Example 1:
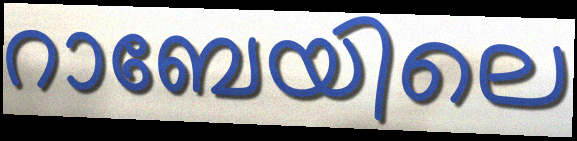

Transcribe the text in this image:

റാബേയിലെ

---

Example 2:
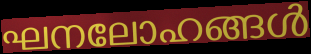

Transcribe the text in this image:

ഘനലോഹങ്ങൾ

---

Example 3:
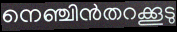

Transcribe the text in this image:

നെഞ്ചിൻതറക്കൂടു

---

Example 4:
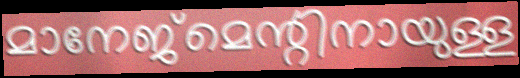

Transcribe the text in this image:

മാനേജ്മെന്റിനായുള്ള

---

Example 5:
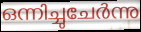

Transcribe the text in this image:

ഒന്നിച്ചുചേർന്നു